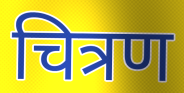
चित्रण